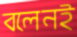
বলেনই